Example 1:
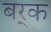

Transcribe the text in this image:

बर्क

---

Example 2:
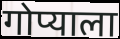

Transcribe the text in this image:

गोप्याला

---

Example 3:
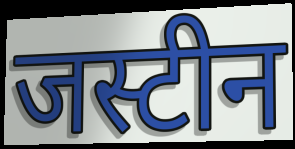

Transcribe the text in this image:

जस्टीन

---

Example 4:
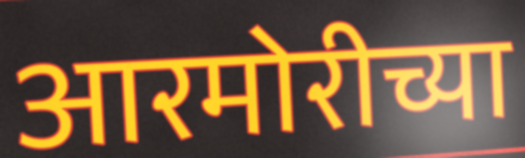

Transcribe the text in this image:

आरमोरीच्या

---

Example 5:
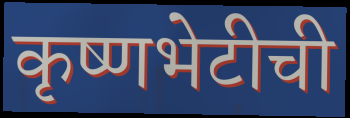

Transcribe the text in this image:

कृष्णभेटीची